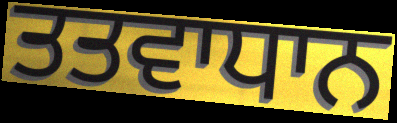
ਤਤਵਾਧਾਨ